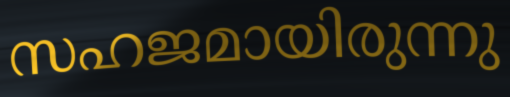
സഹജമായിരുന്നു